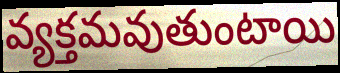
వ్యక్తమవుతుంటాయి